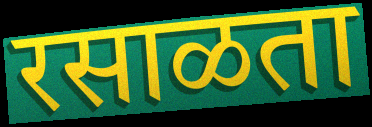
रसाळता